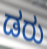
ಡರು